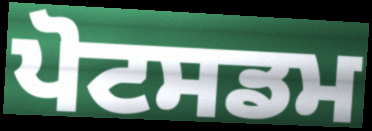
ਪੋਟਸਡਮ